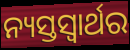
ନ୍ୟସ୍ତସ୍ୱାର୍ଥର